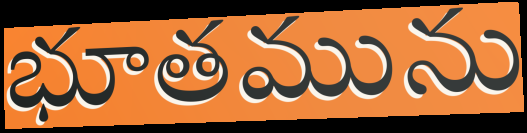
భూతమును